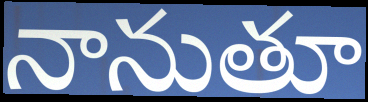
నానుతూ